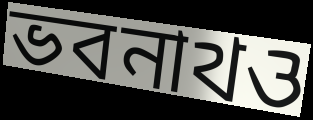
ভবনাথও